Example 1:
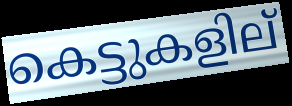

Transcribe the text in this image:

കെട്ടുകളില്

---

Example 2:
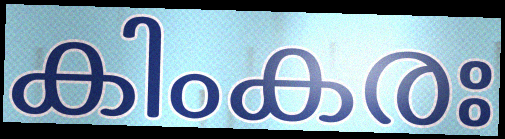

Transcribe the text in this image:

കിംകരഃ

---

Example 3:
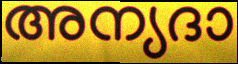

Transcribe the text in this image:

അന്യദാ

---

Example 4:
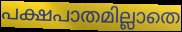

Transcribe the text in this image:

പക്ഷപാതമില്ലാതെ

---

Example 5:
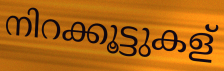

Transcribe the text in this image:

നിറക്കൂട്ടുകള്